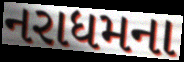
નરાધમના